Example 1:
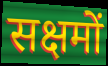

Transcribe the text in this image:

सक्षमों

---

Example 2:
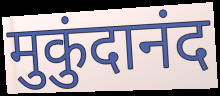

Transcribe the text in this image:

मुकुंदानंद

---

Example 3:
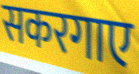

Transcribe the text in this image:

सकरगाए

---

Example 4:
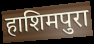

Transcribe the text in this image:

हाशिमपुरा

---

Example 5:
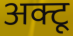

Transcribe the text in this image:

अक्टू